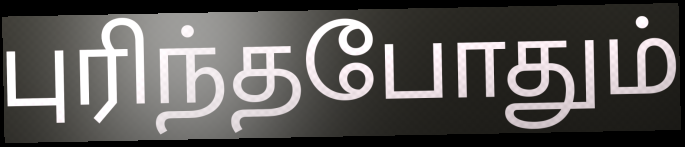
புரிந்தபோதும்